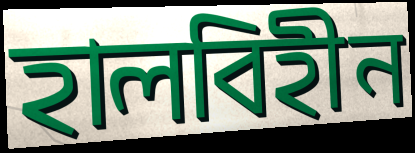
হালবিহীন